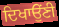
ਦਿਖਾਉਂਣੀ